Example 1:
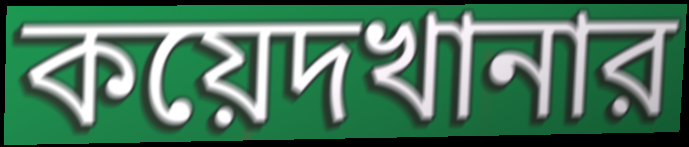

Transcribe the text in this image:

কয়েদখানার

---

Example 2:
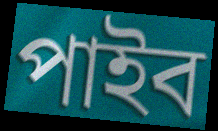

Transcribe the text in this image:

পাইব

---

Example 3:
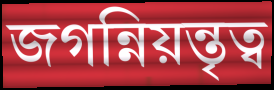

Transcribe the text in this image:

জগন্নিয়ন্তৃত্ব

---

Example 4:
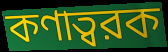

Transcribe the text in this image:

কণাত্বরক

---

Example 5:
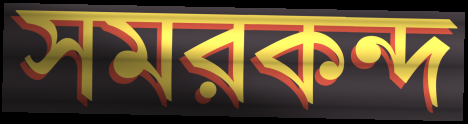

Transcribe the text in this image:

সমরকন্দ